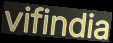
vifindia